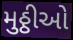
મુઠ્ઠીઓ